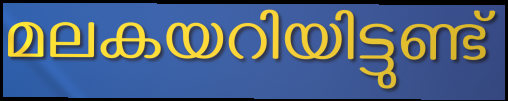
മലകയറിയിട്ടുണ്ട്